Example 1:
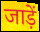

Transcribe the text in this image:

जाड़ें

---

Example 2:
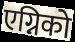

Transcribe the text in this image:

एग्निको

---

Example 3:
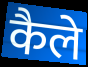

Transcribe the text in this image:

कैले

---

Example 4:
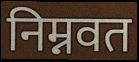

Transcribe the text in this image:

निम्नवत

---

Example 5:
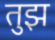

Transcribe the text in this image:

तुझ